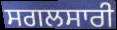
ਸਗਲਸਾਰੀ